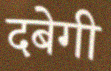
दबेगी